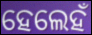
ହେଲେହଁ